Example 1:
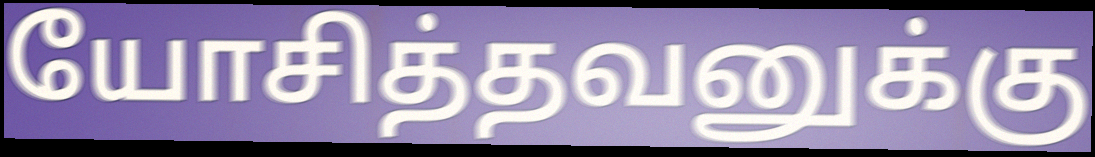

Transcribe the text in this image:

யோசித்தவனுக்கு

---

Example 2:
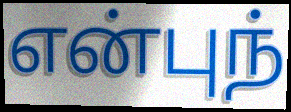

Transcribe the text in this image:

என்புந்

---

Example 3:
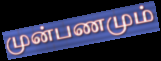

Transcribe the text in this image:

முன்பணமும்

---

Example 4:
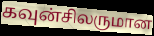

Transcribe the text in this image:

கவுன்சிலருமான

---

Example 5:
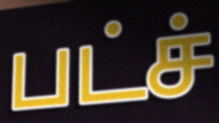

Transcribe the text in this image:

பட்ச்